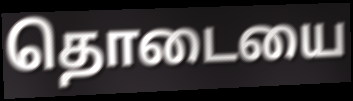
தொடையை